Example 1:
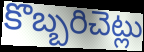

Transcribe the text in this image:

కొబ్బరిచెట్లు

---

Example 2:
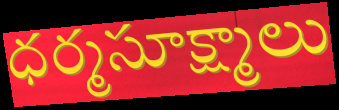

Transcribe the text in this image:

ధర్మసూక్ష్మాలు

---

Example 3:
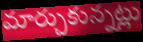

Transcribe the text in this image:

మార్చుకున్నట్లు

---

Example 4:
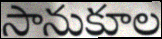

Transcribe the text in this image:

సానుకూల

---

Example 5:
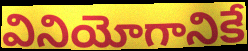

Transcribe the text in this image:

వినియోగానికే